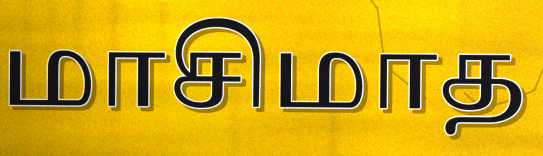
மாசிமாத